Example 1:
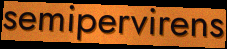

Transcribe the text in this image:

semipervirens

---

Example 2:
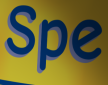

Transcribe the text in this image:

Spe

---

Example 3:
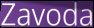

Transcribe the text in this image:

Zavoda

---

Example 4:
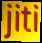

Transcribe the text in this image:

jiti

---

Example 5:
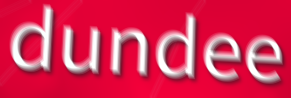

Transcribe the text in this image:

dundee